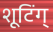
शूटिंग्